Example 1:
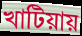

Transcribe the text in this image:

খাটিয়ায়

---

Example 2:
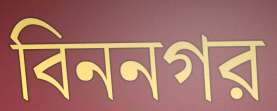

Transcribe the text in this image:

বিননগর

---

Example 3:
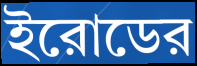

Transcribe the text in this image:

ইরোডের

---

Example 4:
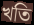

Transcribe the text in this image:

খতি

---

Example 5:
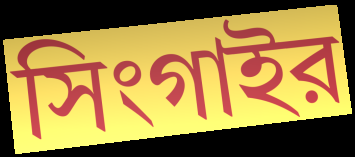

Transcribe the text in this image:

সিংগাইর